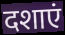
दशाएं